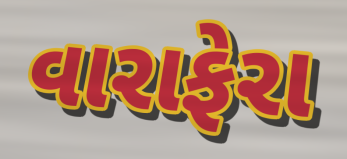
વારાફેરા